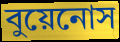
বুয়েনোস